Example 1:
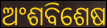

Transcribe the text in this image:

ଅଂଶବିଶେଷ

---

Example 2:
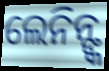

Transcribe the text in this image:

ଲେନିନ୍ଙ୍କ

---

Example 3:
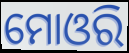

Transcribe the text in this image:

ମୋଓରି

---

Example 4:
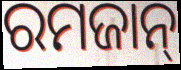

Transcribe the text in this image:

ରମଜାନ୍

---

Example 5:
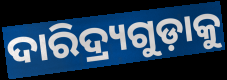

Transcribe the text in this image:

ଦାରିଦ୍ର୍ୟଗୁଡ଼ାକୁ